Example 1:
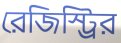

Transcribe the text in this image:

রেজিস্ট্রির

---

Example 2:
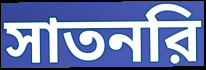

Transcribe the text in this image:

সাতনরি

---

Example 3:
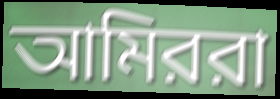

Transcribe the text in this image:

আমিররা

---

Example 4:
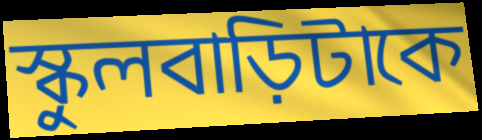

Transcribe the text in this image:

স্কুলবাড়িটাকে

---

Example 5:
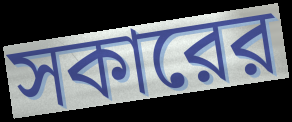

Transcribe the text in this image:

সকারের